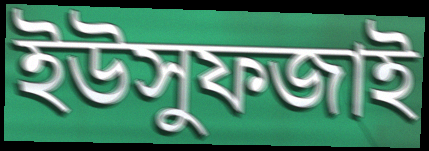
ইউসুফজাই